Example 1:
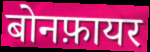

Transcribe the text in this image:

बोनफ़ायर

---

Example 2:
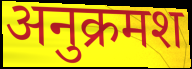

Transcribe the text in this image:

अनुक्रमश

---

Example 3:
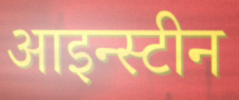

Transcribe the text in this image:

आइन्स्टीन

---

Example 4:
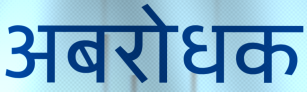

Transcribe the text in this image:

अबरोधक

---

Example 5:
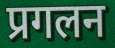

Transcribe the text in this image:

प्रगलन